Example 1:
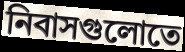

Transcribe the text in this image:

নিবাসগুলোতে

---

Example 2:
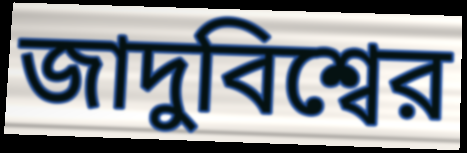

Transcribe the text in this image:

জাদুবিশ্বের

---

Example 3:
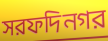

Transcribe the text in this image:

সরফদিনগর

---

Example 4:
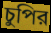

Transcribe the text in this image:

চুপির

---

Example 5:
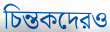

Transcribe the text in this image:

চিন্তকদেরও